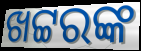
ଖଟ୍ଟରଙ୍କ